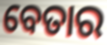
ବେତାର